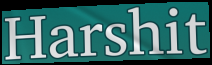
Harshit